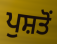
ਪੁਸ਼ਤੋਂ